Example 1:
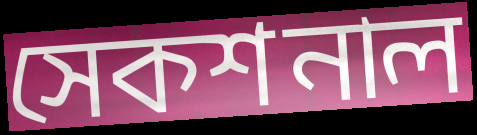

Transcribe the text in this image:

সেকশনাল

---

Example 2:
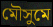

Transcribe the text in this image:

মৌসুমে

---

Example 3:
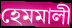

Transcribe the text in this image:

হেমমালী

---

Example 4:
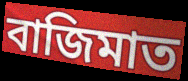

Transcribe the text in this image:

বাজিমাত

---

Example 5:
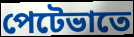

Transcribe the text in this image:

পেটেভাতে